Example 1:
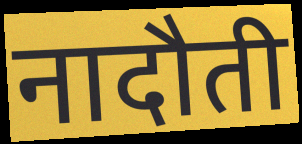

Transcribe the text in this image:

नादौती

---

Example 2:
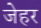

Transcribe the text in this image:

जेहर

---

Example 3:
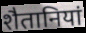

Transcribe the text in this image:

शैतानियां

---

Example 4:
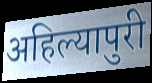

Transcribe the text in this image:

अहिल्यापुरी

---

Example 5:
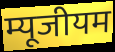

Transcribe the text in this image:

म्यूजीयम